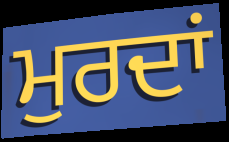
ਮੁਰਦਾਂ